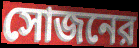
সোজনের